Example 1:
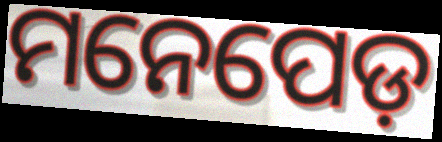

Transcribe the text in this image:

ମନେପେଡ଼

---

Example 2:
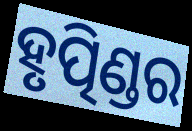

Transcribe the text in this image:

ହୃତ୍ପିଣ୍ଡର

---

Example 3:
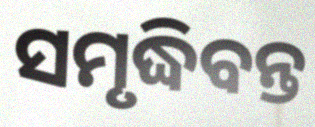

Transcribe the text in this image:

ସମୃଦ୍ଧିବନ୍ତ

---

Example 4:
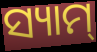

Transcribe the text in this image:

ସ୍ୟାମ୍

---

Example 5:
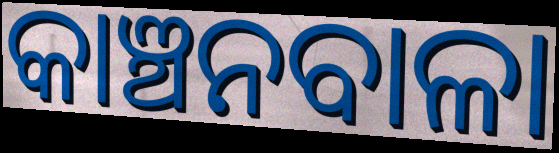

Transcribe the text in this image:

କାଞ୍ଚନବାଳା